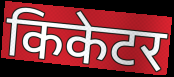
किकेटर